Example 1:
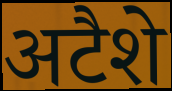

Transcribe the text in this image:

अटैशे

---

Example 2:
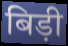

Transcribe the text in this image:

बिड़ी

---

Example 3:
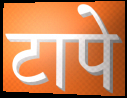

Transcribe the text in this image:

टापे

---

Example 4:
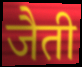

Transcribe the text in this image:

जैती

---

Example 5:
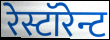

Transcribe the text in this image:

रेस्टॉरेन्ट